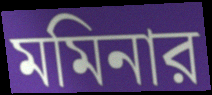
মমিনার